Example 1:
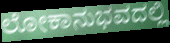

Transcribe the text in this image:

ಲೋಕಾನುಭವದಲ್ಲಿ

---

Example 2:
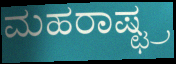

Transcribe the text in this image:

ಮಹರಾಷ್ಟ್ರ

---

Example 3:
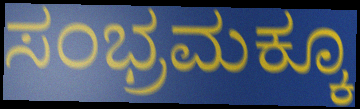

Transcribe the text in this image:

ಸಂಭ್ರಮಕ್ಕೂ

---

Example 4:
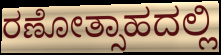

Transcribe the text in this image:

ರಣೋತ್ಸಾಹದಲ್ಲಿ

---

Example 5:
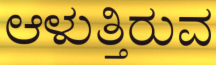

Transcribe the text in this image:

ಆಳುತ್ತಿರುವ